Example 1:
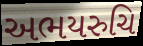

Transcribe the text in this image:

અભયરુચિ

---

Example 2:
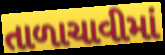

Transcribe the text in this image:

તાળાચાવીમાં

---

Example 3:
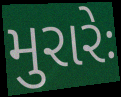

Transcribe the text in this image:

મુરારેઃ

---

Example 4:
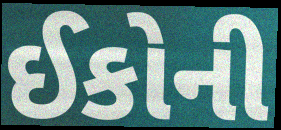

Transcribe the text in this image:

ઈકોની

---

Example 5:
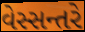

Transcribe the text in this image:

વેસ્સન્તરે